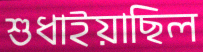
শুধাইয়াছিল